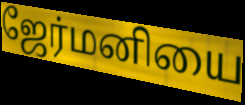
ஜேர்மனியை